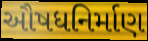
ઔષધનિર્માણ